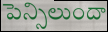
పెన్సిలుందా